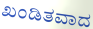
ಖಂಡಿತವಾದ